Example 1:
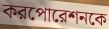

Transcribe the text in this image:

করপোরেশনকে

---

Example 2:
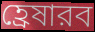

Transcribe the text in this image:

হ্রেষারব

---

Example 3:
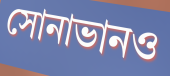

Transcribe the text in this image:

সোনাভানও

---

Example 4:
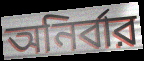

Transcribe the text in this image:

অনির্বার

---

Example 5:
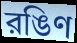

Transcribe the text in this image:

রঙিণ